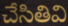
చేసితివి